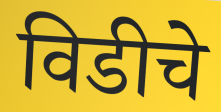
विडीचे